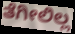
ತೆಗೀಲಿಲ್ಲ